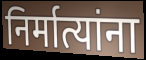
निर्मात्यांना